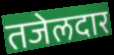
तजेलदार